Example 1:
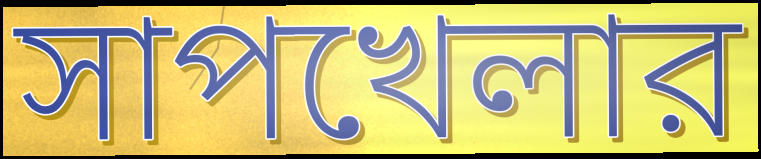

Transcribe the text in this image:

সাপখেলার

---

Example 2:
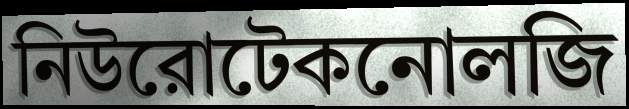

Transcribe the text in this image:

নিউরোটেকনোলজি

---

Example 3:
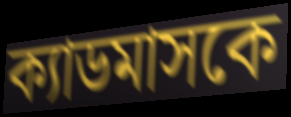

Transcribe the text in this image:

ক্যাডমাসকে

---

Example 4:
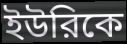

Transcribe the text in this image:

ইউরিকে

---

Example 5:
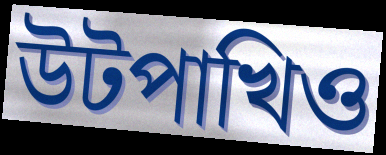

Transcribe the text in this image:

উটপাখিও